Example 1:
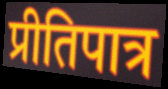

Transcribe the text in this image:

प्रीतिपात्र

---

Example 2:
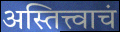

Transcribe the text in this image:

अस्तित्त्वाचं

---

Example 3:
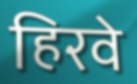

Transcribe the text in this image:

हिरवे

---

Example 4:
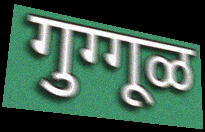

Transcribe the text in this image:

गुग्गूळ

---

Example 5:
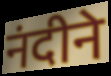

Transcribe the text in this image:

नंदीने